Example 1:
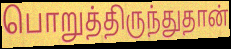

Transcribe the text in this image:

பொறுத்திருந்துதான்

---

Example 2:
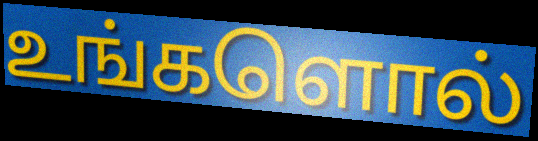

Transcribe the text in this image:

உங்களொல்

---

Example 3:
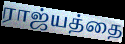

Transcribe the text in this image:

ராஜ்யத்தை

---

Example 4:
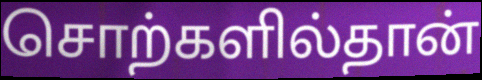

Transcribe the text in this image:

சொற்களில்தான்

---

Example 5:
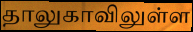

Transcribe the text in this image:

தாலுகாவிலுள்ள